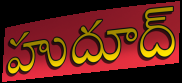
హుదూద్